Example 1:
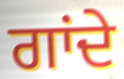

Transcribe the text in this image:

ਗਾਂਦੇ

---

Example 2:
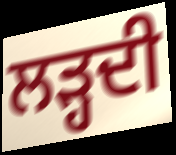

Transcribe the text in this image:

ਲੜ੍ਹਦੀ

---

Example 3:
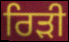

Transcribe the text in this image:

ਰਿੜੀ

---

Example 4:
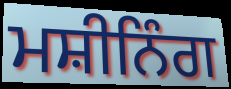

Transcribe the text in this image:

ਮਸ਼ੀਨਿੰਗ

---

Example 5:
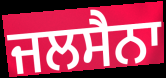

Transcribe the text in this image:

ਜਲਸੈਨਾ